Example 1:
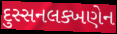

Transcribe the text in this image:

દુસ્સનલક્ખણેન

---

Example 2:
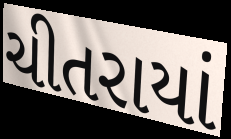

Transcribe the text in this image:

ચીતરાયાં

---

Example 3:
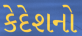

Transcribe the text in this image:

કેદેશનો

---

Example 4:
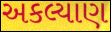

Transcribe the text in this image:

અકલ્યાણ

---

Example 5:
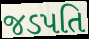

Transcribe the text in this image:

જડપતિ